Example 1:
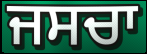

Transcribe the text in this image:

ਜਸਚਾ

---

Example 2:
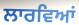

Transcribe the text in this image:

ਲਾਰਵਿਆਂ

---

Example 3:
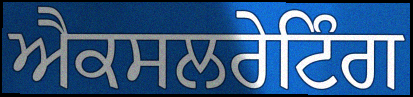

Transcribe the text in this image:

ਐਕਸਲਰੇਟਿੰਗ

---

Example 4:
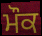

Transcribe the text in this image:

ਮੌਕ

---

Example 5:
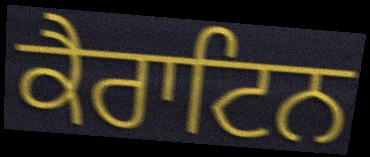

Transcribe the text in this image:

ਕੈਰਾਟਿਨ